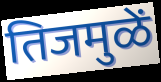
तिजमुळें